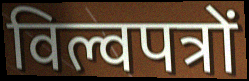
विल्वपत्रों